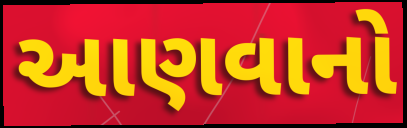
આણવાનો